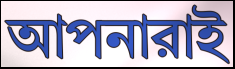
আপনারাই